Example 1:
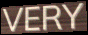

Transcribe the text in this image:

VERY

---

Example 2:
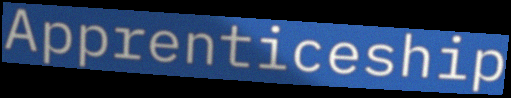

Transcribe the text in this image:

Apprenticeship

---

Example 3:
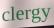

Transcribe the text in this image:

clergy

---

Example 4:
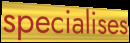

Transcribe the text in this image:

specialises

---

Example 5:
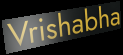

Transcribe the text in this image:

Vrishabha